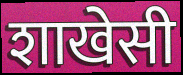
शाखेसी